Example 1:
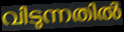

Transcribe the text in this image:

വിടുന്നതിൽ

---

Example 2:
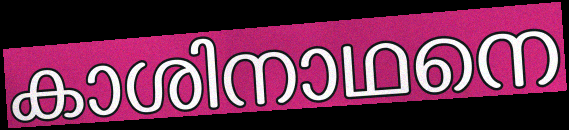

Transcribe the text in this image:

കാശിനാഥനെ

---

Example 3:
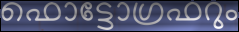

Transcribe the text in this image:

ഫൊട്ടോഗ്രഫറും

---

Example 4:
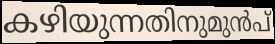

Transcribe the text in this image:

കഴിയുന്നതിനുമുൻപ്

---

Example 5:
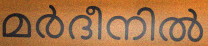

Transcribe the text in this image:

മർദീനിൽ